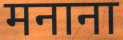
मनाना